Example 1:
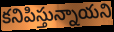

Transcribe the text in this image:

కనిపిస్తున్నాయని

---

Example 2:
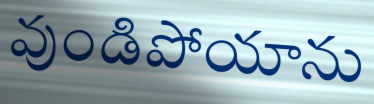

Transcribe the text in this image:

వుండిపోయాను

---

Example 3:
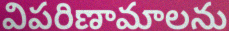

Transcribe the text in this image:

విపరిణామాలను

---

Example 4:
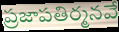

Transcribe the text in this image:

ప్రజాపతిర్మనవే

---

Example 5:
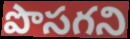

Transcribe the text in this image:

పొసగని